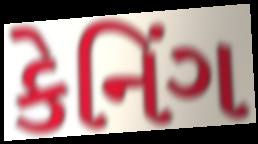
કેનિંગ